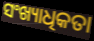
ସଂଖ୍ୟାଧିକତା